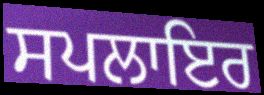
ਸਪਲਾਇਰ